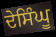
ਦੇਸਿੰਘੂ